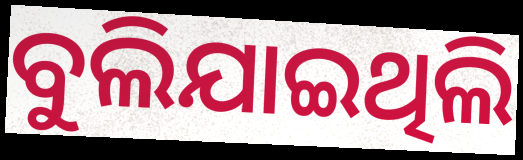
ବୁଲିଯାଇଥିଲି